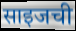
साइजची